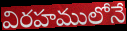
విరహములోనే